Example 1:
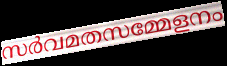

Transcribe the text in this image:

സർവമതസമ്മേളനം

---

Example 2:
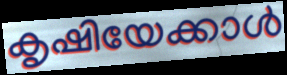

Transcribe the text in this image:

കൃഷിയേക്കാൾ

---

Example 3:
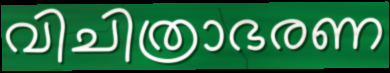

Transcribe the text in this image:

വിചിത്രാഭരണ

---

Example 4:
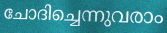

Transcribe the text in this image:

ചോദിച്ചെന്നുവരാം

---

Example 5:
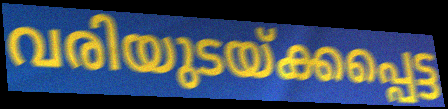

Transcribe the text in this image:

വരിയുടയ്ക്കപ്പെട്ട